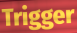
Trigger